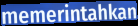
memerintahkan